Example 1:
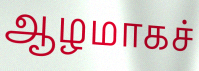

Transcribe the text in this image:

ஆழமாகச்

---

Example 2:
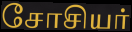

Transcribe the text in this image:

சோசியர்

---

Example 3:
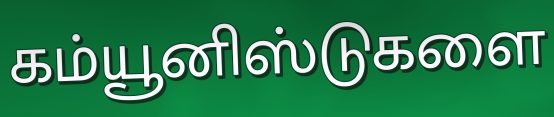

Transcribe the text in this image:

கம்யூனிஸ்டுகளை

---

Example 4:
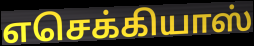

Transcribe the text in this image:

எசெக்கியாஸ்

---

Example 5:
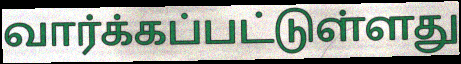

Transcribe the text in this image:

வார்க்கப்பட்டுள்ளது